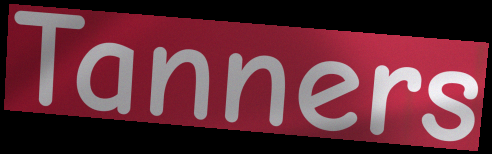
Tanners